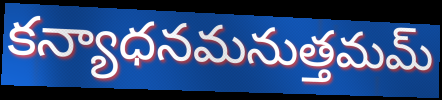
కన్యాధనమనుత్తమమ్